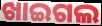
ଖାଇଗଲ